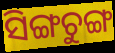
ସିଙ୍ଗଚୁଙ୍ଗ